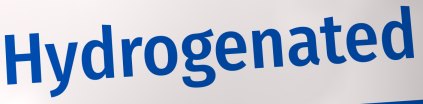
Hydrogenated